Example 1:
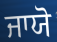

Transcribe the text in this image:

ਜਾਯੋ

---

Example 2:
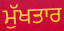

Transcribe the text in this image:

ਮੁੱਖਤਾਰ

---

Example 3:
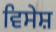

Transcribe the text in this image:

ਵਿਸੇਸ਼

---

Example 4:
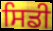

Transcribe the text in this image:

ਸਿਡੀ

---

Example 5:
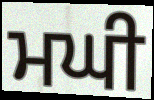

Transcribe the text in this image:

ਮਘੀ